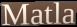
Matla